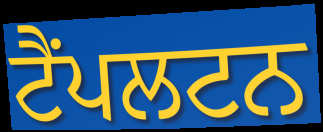
ਟੈਂਪਲਟਨ